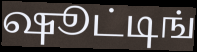
ஷூட்டிங்